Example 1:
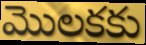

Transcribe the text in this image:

మొలకకు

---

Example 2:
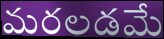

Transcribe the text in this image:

మరలడమే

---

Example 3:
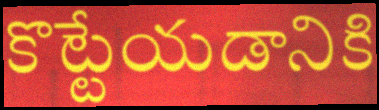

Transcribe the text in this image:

కొట్టేయడానికి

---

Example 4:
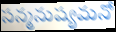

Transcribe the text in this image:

సన్మనుష్యమనో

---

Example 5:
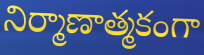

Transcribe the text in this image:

నిర్మాణాత్మకంగా